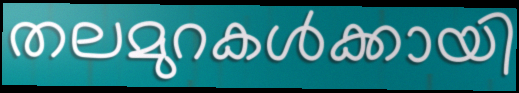
തലമുറകൾക്കായി